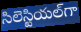
సిలెస్టియల్‌గా